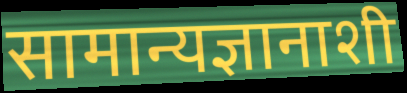
सामान्यज्ञानाशी